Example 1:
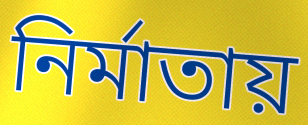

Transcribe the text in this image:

নির্মাতায়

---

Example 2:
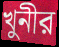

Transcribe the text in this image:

খুনীর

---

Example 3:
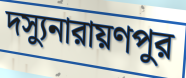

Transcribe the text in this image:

দস্যুনারায়ণপুর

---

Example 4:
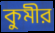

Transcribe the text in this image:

কুমীর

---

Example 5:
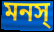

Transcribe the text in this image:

মনস্